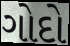
ગોદો